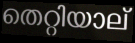
തെറ്റിയാല്